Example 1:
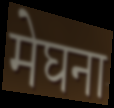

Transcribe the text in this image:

मेघना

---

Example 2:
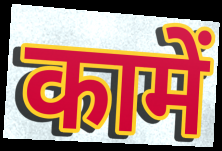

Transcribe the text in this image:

कामें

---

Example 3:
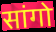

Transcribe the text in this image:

सांगो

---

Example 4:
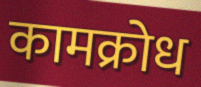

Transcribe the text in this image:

कामक्रोध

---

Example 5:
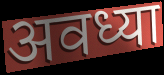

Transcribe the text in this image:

अवध्या